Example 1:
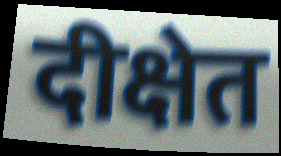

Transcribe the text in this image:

दीक्षेत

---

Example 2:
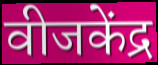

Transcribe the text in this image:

वीजकेंद्र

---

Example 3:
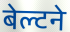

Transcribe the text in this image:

बेल्टने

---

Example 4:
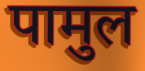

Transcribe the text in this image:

पामुल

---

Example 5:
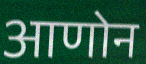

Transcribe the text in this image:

आणोन